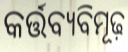
କର୍ତ୍ତବ୍ୟବିମୂଢ଼